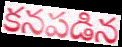
కనపడిన